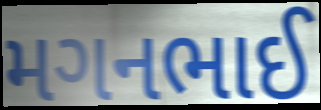
મગનભાઈ